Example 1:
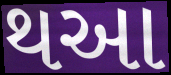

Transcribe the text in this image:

થઆ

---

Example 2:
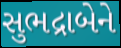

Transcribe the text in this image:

સુભદ્રાબેને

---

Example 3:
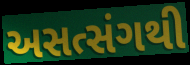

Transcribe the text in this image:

અસત્સંગથી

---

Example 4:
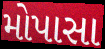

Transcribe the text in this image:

મોપાસા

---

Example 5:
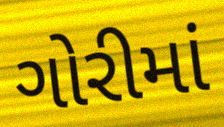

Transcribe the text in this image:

ગોરીમાં